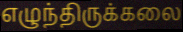
எழுந்திருக்கலை